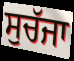
ਸੁਚੱਜਾ